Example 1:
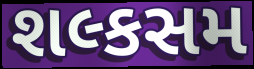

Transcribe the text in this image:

શલ્કસમ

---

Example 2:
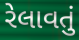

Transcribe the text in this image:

રેલાવતું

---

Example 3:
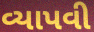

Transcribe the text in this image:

વ્યાપવી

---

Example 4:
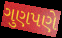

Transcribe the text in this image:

ગુણપણે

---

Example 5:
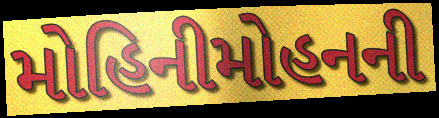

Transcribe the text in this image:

મોહિનીમોહનની